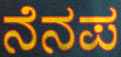
ನೆನಪ